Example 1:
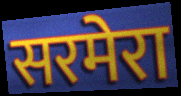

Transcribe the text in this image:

सरमेरा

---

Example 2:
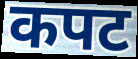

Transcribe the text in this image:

कपट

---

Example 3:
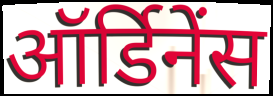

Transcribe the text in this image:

ऑर्डिनेंस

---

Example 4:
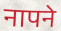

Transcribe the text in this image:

नापने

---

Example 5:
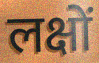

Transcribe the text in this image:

लक्षों